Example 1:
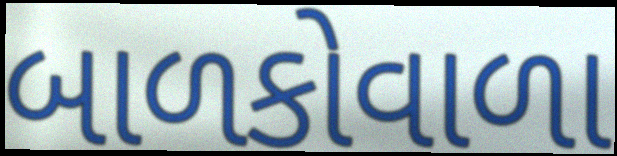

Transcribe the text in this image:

બાળકોવાળા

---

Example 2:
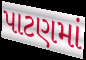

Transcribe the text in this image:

પાટણમાં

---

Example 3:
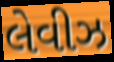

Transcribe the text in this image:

લેવીઝ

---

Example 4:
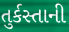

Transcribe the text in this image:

તુર્કસ્તાની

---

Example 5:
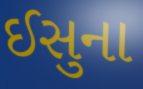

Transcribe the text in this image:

ઈસુના